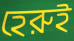
হেৰুই